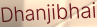
Dhanjibhai